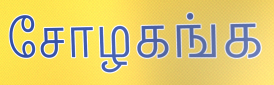
சோழகங்க